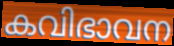
കവിഭാവന